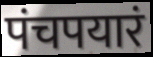
पंचपयारं